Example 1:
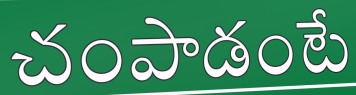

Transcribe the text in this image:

చంపాడంటే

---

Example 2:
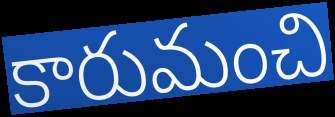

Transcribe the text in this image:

కారుమంచి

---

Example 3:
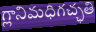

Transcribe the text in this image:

గ్లానిమధిగచ్ఛతి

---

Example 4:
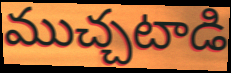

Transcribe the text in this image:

ముచ్చటాడి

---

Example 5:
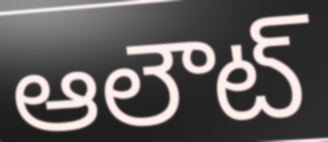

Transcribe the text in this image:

ఆలౌట్